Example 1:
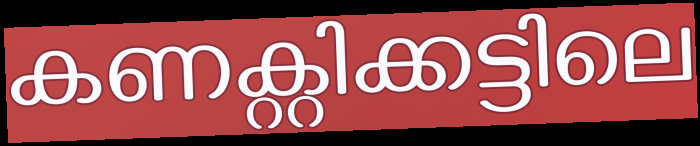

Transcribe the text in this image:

കണക്റ്റിക്കട്ടിലെ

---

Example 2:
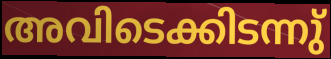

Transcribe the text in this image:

അവിടെക്കിടന്നു്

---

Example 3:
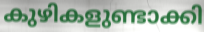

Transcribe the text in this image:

കുഴികളുണ്ടാക്കി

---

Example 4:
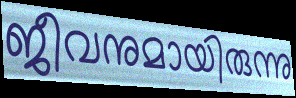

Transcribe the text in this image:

ജീവനുമായിരുന്നു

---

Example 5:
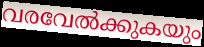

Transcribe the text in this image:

വരവേൽക്കുകയും